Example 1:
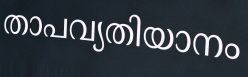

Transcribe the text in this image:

താപവ്യതിയാനം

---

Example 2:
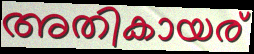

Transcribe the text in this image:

അതികായര്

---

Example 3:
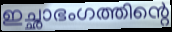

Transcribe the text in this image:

ഇച്ഛാഭംഗത്തിന്റെ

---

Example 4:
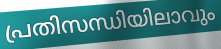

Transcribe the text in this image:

പ്രതിസന്ധിയിലാവും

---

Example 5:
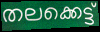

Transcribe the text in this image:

തലക്കെട്ട്